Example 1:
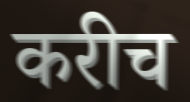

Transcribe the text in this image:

करीच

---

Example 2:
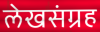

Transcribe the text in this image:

लेखसंग्रह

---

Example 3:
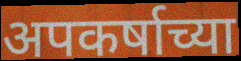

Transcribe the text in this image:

अपकर्षाच्या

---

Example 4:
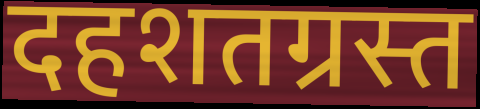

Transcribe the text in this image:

दहशतग्रस्त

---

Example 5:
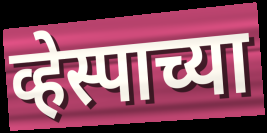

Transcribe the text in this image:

व्हेस्पाच्या